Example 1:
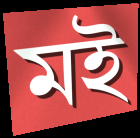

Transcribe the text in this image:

মই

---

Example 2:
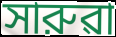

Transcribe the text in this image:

সাৰুৱা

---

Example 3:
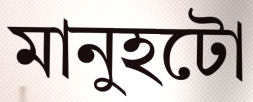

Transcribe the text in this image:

মানুহটো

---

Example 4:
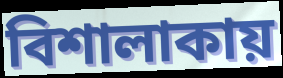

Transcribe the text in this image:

বিশালাকায়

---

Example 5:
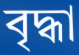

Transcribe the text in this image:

বৃদ্ধা